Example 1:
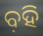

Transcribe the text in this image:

ବ଼ହି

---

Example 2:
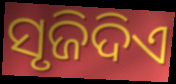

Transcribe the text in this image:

ସୃଜିଦିଏ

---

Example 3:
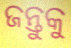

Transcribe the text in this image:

ଜନ୍ତୁକୁ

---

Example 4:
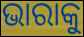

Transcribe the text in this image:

ଭାରାକୁ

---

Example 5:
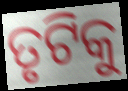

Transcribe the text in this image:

ତୃଟିକୁ